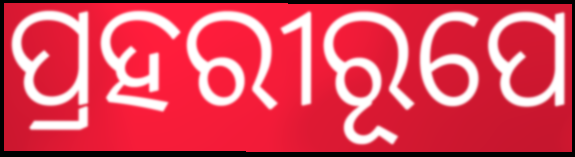
ପ୍ରହରୀରୂପେ